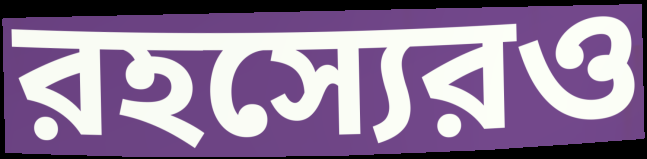
রহস্যেরও